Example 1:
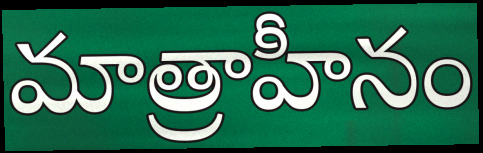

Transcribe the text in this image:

మాత్రాహీనం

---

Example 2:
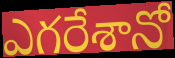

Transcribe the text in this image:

ఎగరేశానో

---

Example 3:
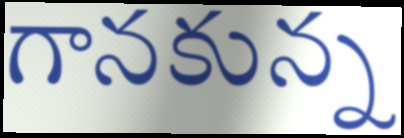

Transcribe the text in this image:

గానకున్న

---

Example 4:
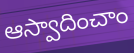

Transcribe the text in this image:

ఆస్వాదించాం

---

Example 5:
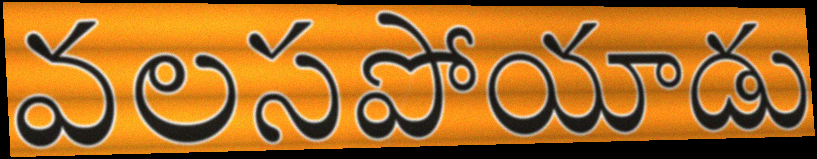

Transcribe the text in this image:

వలసపోయాడు